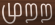
முறற